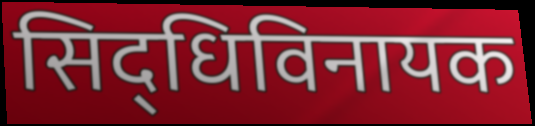
सिद्धिविनायक